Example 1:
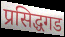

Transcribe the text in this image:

प्रसिद्धगड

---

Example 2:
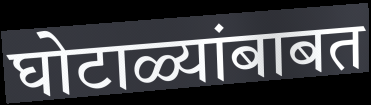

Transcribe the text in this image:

घोटाळ्यांबाबत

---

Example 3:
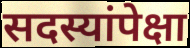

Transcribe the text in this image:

सदस्यांपेक्षा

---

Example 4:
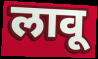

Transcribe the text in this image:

लावू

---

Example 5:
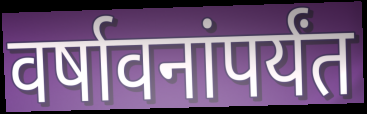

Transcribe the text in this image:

वर्षावनांपर्यंत